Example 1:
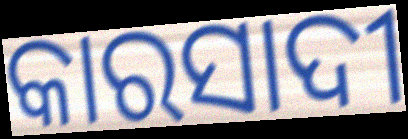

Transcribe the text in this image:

କାରସାଦୀ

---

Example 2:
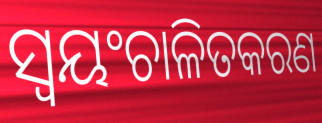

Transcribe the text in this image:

ସ୍ୱୟଂଚାଳିତକରଣ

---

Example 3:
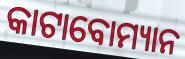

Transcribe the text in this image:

କାଟାବୋମ୍ୟାନ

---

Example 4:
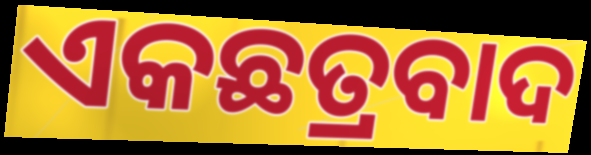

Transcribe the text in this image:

ଏକଛତ୍ରବାଦ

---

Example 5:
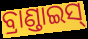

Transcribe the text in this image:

ବ୍ରାଣ୍ଡାଇସ୍